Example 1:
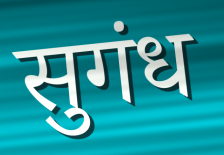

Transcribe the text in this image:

सुगंध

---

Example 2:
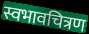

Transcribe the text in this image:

स्वभावचित्रण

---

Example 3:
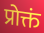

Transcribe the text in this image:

प्रोक्तं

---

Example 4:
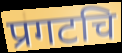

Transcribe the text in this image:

प्रगटचि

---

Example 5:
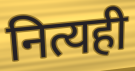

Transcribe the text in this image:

नित्यही